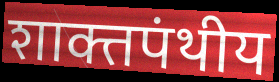
शाक्तपंथीय